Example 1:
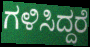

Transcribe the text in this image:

ಗಳಿಸಿದ್ದರೆ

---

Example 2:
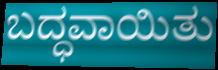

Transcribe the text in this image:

ಬದ್ಧವಾಯಿತು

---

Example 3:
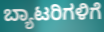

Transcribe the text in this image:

ಬ್ಯಾಟರಿಗಳಿಗೆ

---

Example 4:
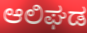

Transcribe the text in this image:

ಆಲಿಘಡ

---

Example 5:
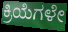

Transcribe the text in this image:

ಕ್ರಿಯೆಗಳೇ